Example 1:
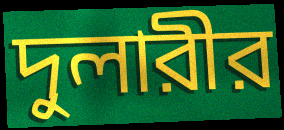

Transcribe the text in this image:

দুলারীর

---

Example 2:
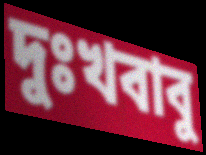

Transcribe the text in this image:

দুঃখবাবু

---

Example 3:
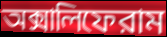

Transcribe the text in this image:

অক্সালিফেরাম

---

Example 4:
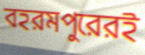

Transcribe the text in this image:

বহরমপুরেরই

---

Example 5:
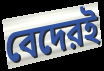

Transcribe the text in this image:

বেদেরই